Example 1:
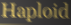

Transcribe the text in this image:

Haploid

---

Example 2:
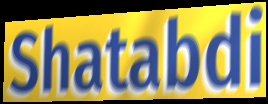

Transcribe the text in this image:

Shatabdi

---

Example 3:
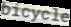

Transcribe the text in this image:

bicycle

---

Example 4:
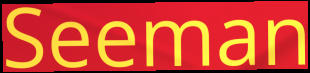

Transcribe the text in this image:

Seeman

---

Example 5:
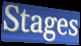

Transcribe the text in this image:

Stages